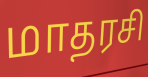
மாதரசி